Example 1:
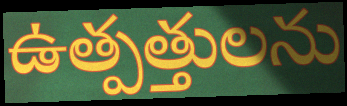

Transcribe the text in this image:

ఉత్పత్తులను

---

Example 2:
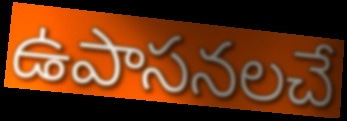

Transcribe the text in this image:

ఉపాసనలచే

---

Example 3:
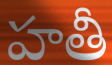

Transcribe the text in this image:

హతీ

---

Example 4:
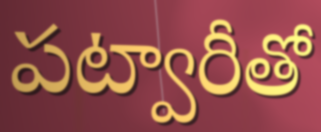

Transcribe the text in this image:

పట్వారీతో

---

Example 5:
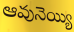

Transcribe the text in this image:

ఆవునెయ్యి